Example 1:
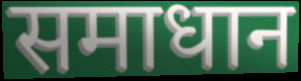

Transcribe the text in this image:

समाधान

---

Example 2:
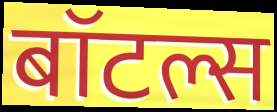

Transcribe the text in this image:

बॉटल्स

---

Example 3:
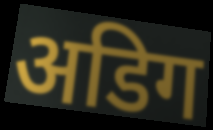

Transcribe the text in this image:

अडिग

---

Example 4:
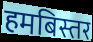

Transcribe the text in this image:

हमबिस्तर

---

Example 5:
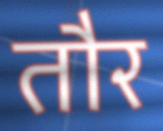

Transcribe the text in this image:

तौर